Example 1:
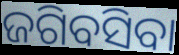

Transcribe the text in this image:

ଜଗିବସିବା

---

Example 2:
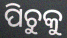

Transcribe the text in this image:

ପିଚୁକୁ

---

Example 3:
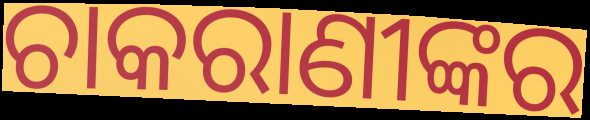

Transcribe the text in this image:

ଚାକରାଣୀଙ୍କର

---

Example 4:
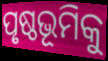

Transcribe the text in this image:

ପୃଷ୍ଠଭୂମିକୁ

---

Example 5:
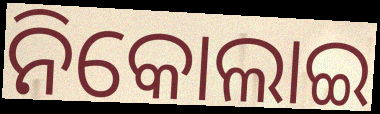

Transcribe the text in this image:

ନିକୋଲାଇ